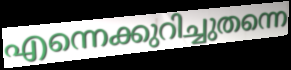
എന്നെക്കുറിച്ചുതന്നെ